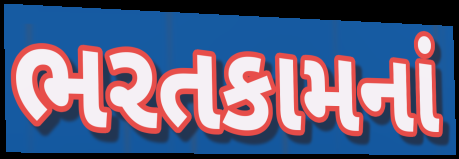
ભરતકામનાં